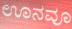
ಊನವೂ